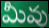
మీవు